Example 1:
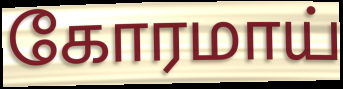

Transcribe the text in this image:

கோரமாய்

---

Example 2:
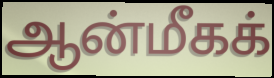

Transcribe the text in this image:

ஆன்மீகக்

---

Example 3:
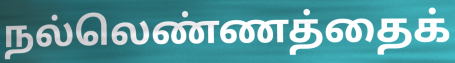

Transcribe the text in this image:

நல்லெண்ணத்தைக்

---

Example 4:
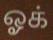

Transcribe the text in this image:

ஓக்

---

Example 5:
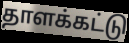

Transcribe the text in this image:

தாளக்கட்டு